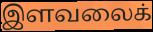
இளவலைக்